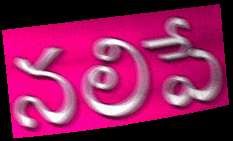
నలిపే